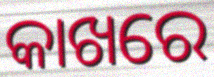
କାଖରେ